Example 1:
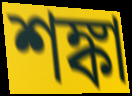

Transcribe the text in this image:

শঙ্কা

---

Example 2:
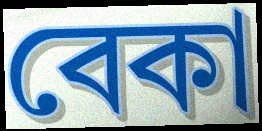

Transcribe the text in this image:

বেকা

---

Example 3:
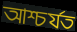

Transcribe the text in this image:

আশ্চৰ্যত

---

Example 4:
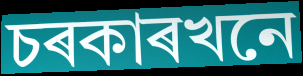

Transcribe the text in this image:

চৰকাৰখনে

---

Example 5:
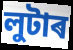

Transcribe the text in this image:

লুটাৰ